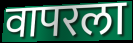
वापरला